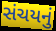
સંચયનું